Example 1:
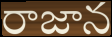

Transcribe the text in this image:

రాజాన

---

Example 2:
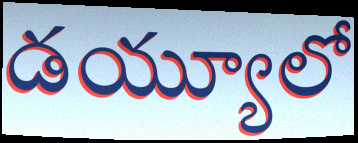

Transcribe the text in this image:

డయ్యూలో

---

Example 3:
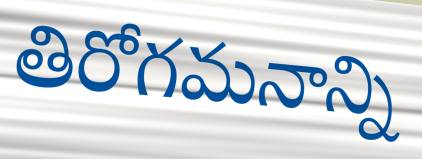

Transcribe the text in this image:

తిరోగమనాన్ని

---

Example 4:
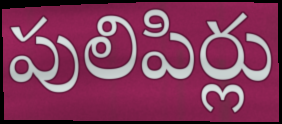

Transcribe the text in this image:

పులిపిర్లు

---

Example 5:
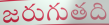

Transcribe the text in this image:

జరుగుతది